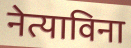
नेत्याविना